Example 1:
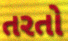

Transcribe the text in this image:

તરતો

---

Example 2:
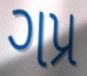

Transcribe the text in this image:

ગપ્ર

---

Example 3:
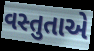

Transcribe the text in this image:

વસ્તુતાએ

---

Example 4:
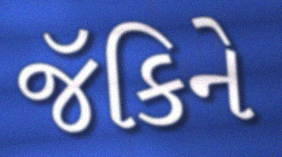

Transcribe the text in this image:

જૅકિને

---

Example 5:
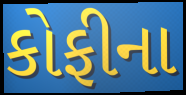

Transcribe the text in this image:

કોફીના